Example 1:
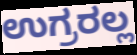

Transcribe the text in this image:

ಉಗ್ರರಲ್ಲ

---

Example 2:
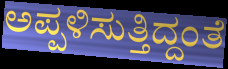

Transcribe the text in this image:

ಅಪ್ಪಳಿಸುತ್ತಿದ್ದಂತೆ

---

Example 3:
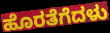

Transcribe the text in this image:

ಹೊರತೆಗೆದಳು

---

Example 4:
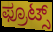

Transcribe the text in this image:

ಫ್ರೂಟ್ಸ್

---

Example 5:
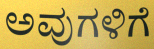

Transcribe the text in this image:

ಅವುಗಳಿಗೆ